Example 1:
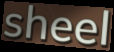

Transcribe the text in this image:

sheel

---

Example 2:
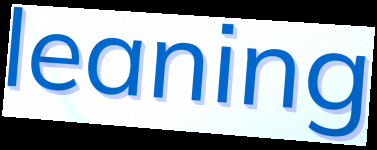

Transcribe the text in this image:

leaning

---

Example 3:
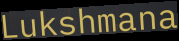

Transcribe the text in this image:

Lukshmana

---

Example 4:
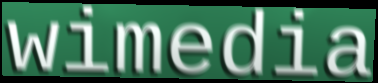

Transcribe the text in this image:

wimedia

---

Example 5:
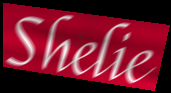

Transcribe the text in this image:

Shelie